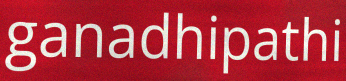
ganadhipathi